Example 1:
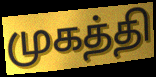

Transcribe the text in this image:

முகத்தி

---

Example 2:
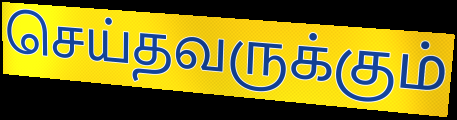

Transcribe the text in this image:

செய்தவருக்கும்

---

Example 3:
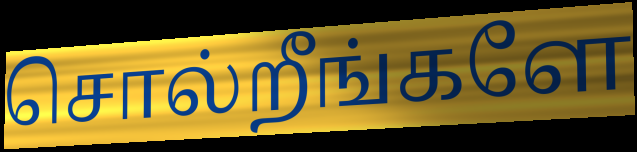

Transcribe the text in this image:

சொல்றீங்களே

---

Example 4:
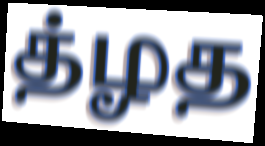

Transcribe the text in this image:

த்ழத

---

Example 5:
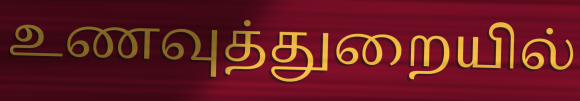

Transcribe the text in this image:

உணவுத்துறையில்